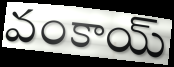
వంకాయ్